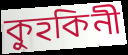
কুহকিনী